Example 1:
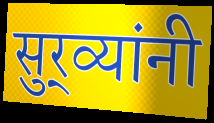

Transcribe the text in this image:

सुर्व्यांनी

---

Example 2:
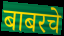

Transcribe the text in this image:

बाबरचे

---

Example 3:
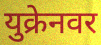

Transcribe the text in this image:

युक्रेनवर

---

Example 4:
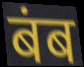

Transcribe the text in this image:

बंब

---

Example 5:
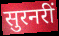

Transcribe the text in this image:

सुरनरीं